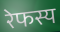
रेफस्य